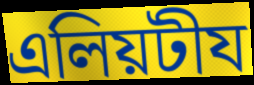
এলিয়টীয